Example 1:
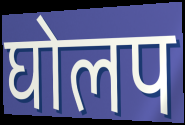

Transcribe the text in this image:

घोलप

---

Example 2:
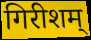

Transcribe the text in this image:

गिरीशम्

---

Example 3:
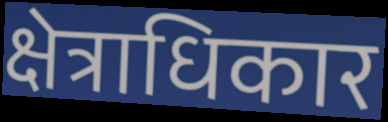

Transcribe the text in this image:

क्षेत्राधिकार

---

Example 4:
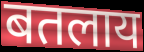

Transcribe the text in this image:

बतलाय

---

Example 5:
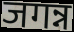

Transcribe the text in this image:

जगन्न